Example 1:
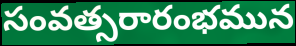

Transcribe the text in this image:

సంవత్సరారంభమున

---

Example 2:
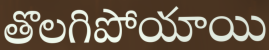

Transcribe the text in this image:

తొలగిపోయాయి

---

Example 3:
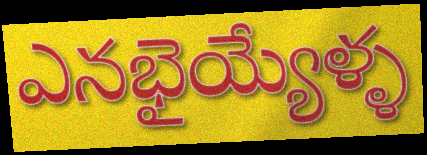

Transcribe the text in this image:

ఎనభైయ్యేళ్ళ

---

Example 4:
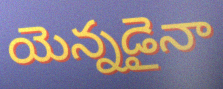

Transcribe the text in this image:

యెన్నడైనా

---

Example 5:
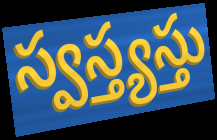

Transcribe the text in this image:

స్వస్త్యస్తు